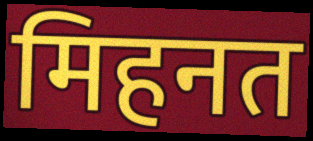
मिहनत